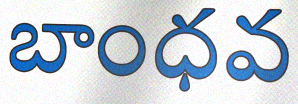
బాంధవ